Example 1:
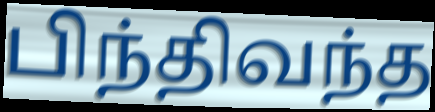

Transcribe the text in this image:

பிந்திவந்த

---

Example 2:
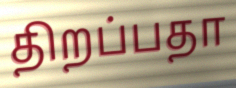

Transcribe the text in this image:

திறப்பதா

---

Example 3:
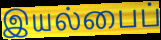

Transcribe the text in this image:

இயல்பைப்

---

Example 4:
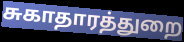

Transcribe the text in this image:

சுகாதாரத்துறை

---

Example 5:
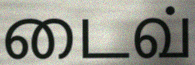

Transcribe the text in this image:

டைவ்